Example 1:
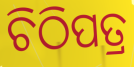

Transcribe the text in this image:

ଚିଠିପତ୍ର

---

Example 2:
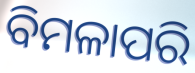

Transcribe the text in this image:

ବିମଳାପରି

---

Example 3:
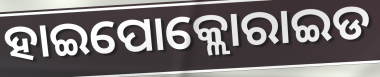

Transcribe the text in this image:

ହାଇପୋକ୍ଲୋରାଇଡ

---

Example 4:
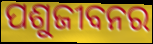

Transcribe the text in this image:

ପଶୁଜୀବନର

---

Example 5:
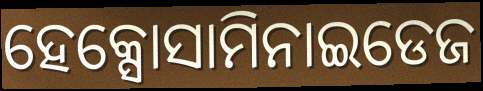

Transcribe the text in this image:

ହେକ୍ସୋସାମିନାଇଡେଜ